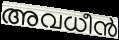
അവധീൻ